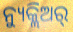
ନ୍ୟୁକ୍ଲିଅର୍